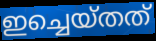
ഇച്ചെയ്തത്